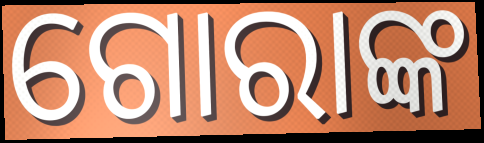
ଗୋରାଙ୍କ